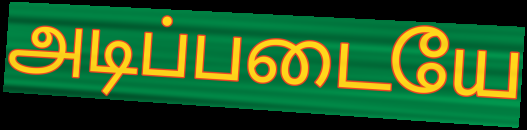
அடிப்படையே